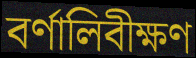
বর্ণালিবীক্ষণ